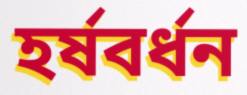
হর্ষবর্ধন